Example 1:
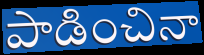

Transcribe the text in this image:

పాడించినా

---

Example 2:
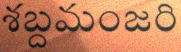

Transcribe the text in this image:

శబ్దమంజరి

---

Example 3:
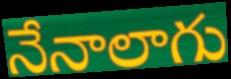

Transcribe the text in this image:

నేనాలాగు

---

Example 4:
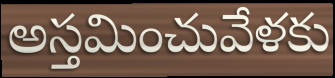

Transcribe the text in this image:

అస్తమించువేళకు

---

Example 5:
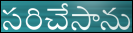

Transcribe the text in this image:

సరిచేసాను